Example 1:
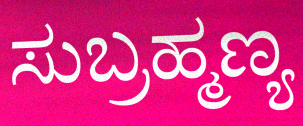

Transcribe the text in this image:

ಸುಬ್ರಹ್ಮಣ್ಯ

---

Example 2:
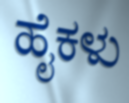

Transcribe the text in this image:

ಹೈಕಳು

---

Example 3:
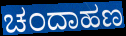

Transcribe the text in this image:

ಚಂದಾಹಣ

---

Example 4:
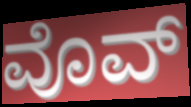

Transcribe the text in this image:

ವೊವ್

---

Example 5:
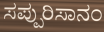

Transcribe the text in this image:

ಸಪ್ಪುರಿಸಾನಂ